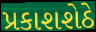
પ્રકાશશેઠે